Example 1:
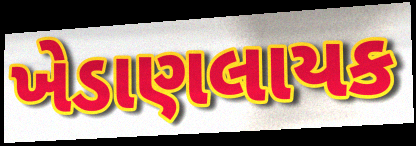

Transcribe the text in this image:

ખેડાણલાયક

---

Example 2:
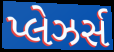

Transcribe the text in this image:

પ્લેઝર્સ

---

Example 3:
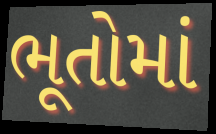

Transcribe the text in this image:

ભૂતોમાં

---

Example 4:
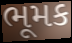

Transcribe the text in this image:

ભૂમક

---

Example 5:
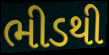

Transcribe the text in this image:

ભીડથી